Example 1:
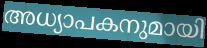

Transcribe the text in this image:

അധ്യാപകനുമായി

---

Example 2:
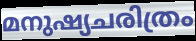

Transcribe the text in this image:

മനുഷ്യചരിത്രം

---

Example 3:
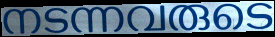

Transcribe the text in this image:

നടന്നവരുടെ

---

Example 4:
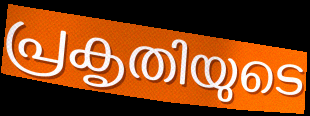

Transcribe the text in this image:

പ്രകൃതിയുടെ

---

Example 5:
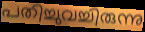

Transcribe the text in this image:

പതിച്ചുവച്ചിരുന്നു